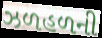
ઝળહળની